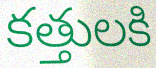
కత్తులకి